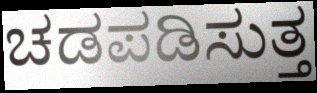
ಚಡಪಡಿಸುತ್ತ